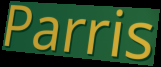
Parris